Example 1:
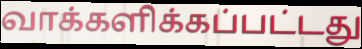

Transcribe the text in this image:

வாக்களிக்கப்பட்டது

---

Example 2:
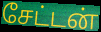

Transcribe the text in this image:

சேட்டன்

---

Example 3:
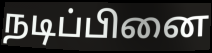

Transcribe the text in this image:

நடிப்பினை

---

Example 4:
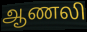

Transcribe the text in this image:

ஆணலி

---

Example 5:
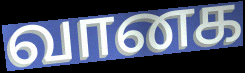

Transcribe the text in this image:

வானக